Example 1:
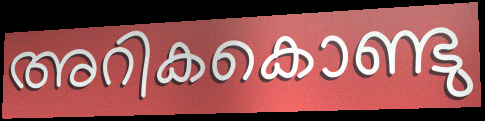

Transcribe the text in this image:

അറികകൊണ്ടു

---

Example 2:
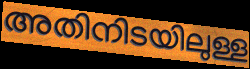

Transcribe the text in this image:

അതിനിടയിലുള്ള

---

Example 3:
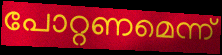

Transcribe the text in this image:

പോറ്റണമെന്ന്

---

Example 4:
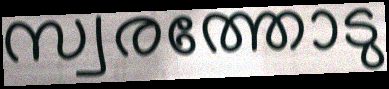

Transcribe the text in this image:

സ്വരത്തോടു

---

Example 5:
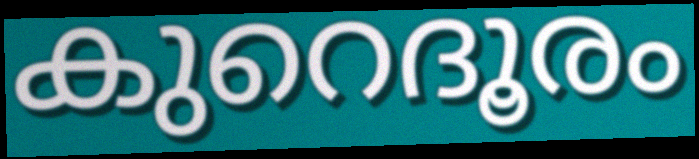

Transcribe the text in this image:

കുറെദൂരം